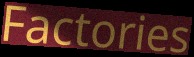
Factories